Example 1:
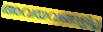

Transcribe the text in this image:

അവയവങ്ങളില്ല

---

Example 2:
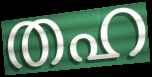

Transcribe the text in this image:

തഹ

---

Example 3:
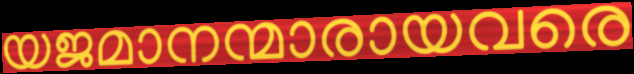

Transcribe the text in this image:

യജമാനന്മാരായവരെ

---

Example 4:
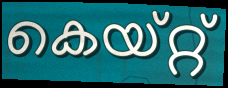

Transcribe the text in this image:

കെയ്റ്റ്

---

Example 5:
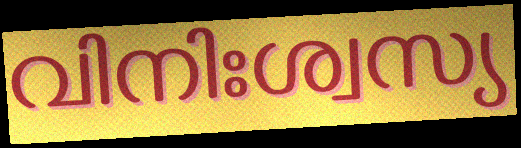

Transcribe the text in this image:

വിനിഃശ്വസ്യ